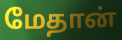
மேதான்